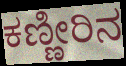
ಕಣ್ಣೀರಿನ